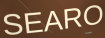
SEARO